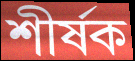
শীর্ষক